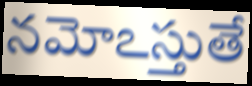
నమోఽస్తుతే